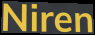
Niren